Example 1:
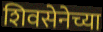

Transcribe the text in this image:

शिवसेनेच्या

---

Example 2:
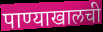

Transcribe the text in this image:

पाण्याखालची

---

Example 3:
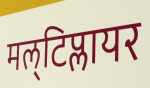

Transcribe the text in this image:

मल्टिप्लायर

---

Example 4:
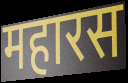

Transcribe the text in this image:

महारस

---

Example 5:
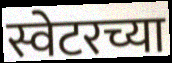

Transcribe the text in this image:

स्वेटरच्या